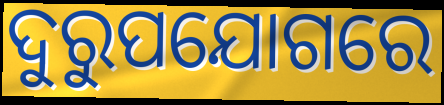
ଦୁରୁପଯୋଗରେ